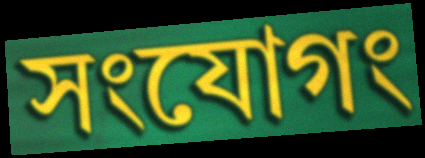
সংযোগং